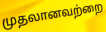
முதலானவற்றை